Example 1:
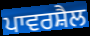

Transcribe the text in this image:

ਪਾਵਰਸ਼ੈਲ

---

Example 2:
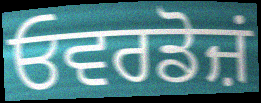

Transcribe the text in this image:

ਓਵਰਡੋਜ਼ਂ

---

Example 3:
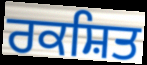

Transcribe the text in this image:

ਰਕਸ਼ਿਤ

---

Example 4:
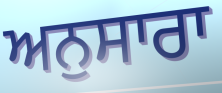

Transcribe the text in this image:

ਅਨੁਸਾਰਾ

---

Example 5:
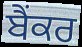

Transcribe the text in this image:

ਬੈਂਕਰ